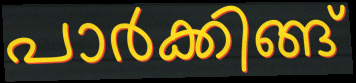
പാർക്കിങ്ങ്